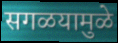
सगळयामुळे